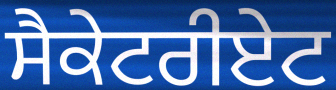
ਸੈਕੇਟਰੀਏਟ